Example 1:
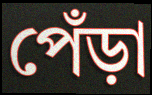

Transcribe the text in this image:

পেঁড়া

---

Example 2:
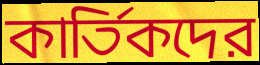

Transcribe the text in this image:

কার্তিকদের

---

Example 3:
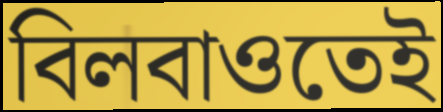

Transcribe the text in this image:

বিলবাওতেই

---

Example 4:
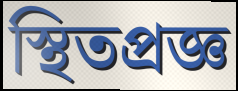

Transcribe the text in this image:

স্থিতপ্রজ্ঞ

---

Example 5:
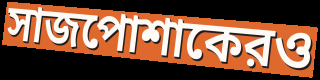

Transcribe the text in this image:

সাজপোশাকেরও